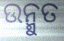
ଉନ୍ମୁତ